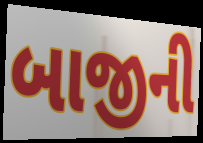
બાજીની